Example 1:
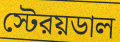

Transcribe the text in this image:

স্টেরয়ডাল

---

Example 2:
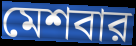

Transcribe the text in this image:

মেশবার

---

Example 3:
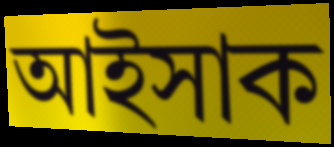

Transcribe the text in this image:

আইসাক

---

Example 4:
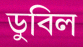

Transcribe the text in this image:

ডুবিল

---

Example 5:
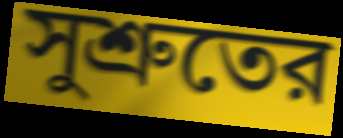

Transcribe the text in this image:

সুশ্রুতের